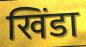
खिंडा